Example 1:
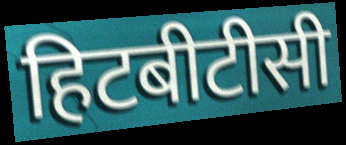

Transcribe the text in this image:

हिटबीटीसी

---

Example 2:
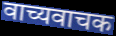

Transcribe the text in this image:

वाच्यवाचक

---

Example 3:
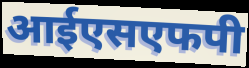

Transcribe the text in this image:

आईएसएफपी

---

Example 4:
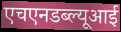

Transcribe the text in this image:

एचएनडब्ल्यूआई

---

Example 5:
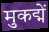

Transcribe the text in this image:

मुकद्में